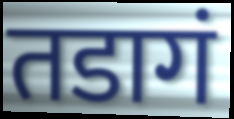
तडागं